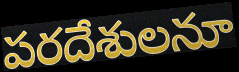
పరదేశులనూ